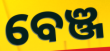
ବେଞ୍ଜ